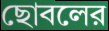
ছোবলের